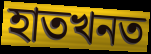
হাতখনত